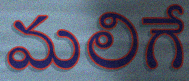
మలిగే